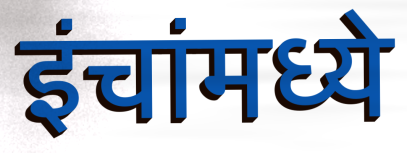
इंचांमध्ये